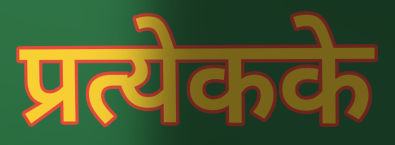
प्रत्येकके